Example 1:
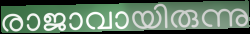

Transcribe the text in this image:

രാജാവായിരുന്നു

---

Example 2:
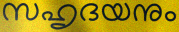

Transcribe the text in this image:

സഹൃദയനും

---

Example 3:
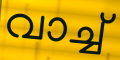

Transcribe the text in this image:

വാച്ച്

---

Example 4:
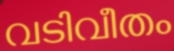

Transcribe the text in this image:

വടിവീതം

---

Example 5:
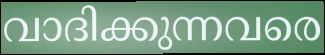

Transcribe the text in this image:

വാദിക്കുന്നവരെ